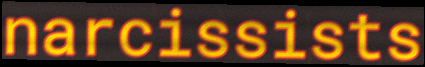
narcissists